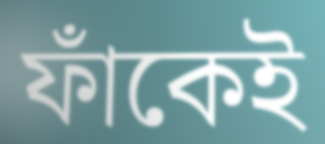
ফাঁকেই